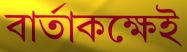
বার্তাকক্ষেই